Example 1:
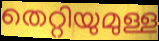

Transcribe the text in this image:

തെറ്റിയുമുള്ള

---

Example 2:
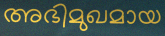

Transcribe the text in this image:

അഭിമുഖമായ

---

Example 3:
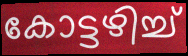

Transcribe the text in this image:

കോട്ടഴിച്ച്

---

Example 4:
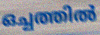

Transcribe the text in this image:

ഒച്ചത്തിൽ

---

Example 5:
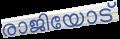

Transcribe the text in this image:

രാജിയോട്